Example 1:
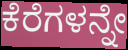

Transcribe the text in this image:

ಕೆರೆಗಳನ್ನೇ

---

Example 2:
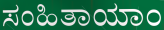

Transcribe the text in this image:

ಸಂಹಿತಾಯಾಂ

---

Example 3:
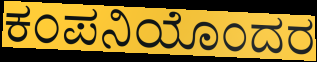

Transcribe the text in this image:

ಕಂಪನಿಯೊಂದರ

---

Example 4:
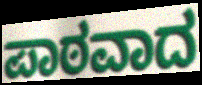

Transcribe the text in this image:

ಪಾಠವಾದ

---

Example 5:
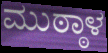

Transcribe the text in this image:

ಮುಠ್ಠಾಳ